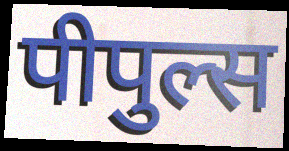
पीपुल्स